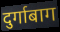
दुर्गाबाग